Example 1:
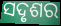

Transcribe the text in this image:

ସଦୃଶର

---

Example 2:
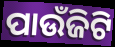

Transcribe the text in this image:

ପାଉଁଜିଟି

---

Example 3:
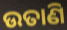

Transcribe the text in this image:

ଉତାଣି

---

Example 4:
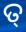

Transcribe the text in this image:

ତ୍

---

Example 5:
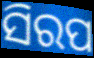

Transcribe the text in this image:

ସିରପ